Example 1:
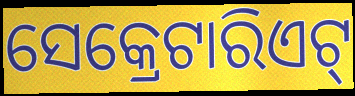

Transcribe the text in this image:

ସେକ୍ରେଟାରିଏଟ୍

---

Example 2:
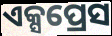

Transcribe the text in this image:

ଏକ୍ସପ୍ରେସ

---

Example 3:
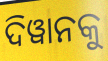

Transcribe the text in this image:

ଦିୱାନକୁ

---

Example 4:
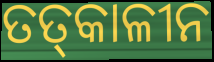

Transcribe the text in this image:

ତତ୍‍କାଳୀନ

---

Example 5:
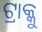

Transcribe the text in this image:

ଟ୍ରାକ୍କୁ